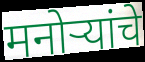
मनोऱ्यांचे